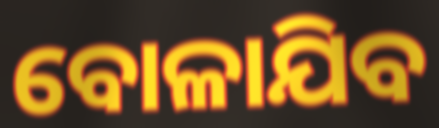
ବୋଳାଯିବ